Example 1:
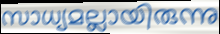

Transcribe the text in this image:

സാധ്യമല്ലായിരുന്നു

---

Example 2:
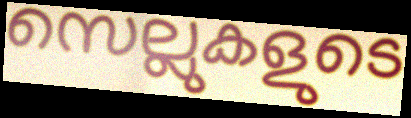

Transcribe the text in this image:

സെല്ലുകളുടെ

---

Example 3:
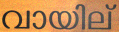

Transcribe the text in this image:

വായില്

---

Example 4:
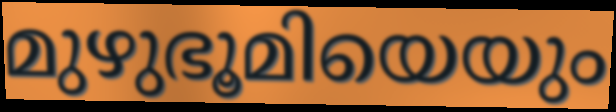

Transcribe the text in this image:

മുഴുഭൂമിയെയും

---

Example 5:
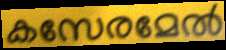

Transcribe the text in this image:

കസേരമേൽ